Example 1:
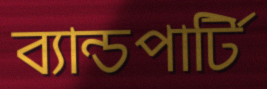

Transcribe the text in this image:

ব্যান্ডপার্টি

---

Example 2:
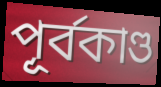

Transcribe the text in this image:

পূর্বকাণ্ড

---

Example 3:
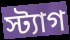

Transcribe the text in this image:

স্ট্যাগ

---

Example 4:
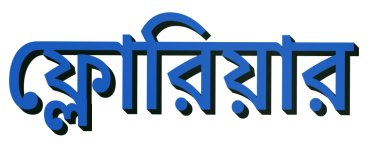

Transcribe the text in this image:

ফ্লোরিয়ার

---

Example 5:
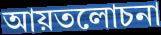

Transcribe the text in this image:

আয়তলোচনা